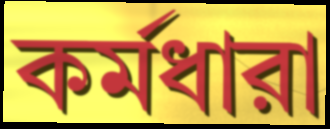
কর্মধারা